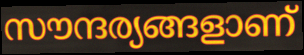
സൗന്ദര്യങ്ങളാണ്